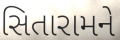
સિતારામને